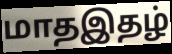
மாதஇதழ்